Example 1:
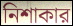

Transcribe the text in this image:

নিশাকার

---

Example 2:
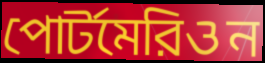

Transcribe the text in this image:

পোর্টমেরিওন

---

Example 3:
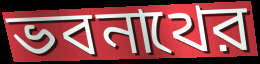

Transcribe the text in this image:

ভবনাথের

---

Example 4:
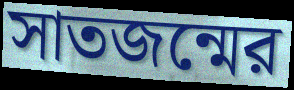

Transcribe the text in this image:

সাতজন্মের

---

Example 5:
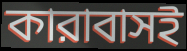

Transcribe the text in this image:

কারাবাসই